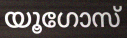
യൂഗോസ്